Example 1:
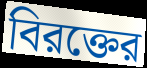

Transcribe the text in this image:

বিরক্তের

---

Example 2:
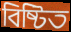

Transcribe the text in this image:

বিষ্টিত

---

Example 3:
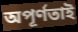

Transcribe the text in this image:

অপূর্ণতাই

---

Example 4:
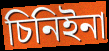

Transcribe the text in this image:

চিনিইনা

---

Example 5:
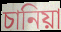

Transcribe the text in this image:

চানিয়া